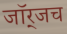
जॉर्जच